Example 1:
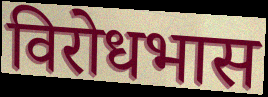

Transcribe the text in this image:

विरोधभास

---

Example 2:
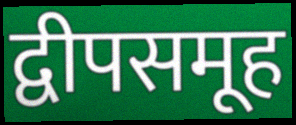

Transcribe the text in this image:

द्वीपसमूह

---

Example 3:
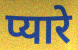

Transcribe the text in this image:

प्यारे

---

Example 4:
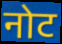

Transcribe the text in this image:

नोट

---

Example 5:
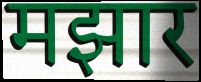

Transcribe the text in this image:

मझार